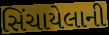
સિંચાયેલાની